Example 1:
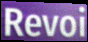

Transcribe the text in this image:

Revoi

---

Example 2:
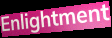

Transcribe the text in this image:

Enlightment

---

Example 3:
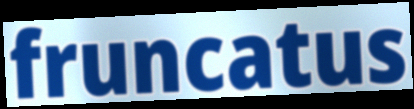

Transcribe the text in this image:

fruncatus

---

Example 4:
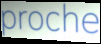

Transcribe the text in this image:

proche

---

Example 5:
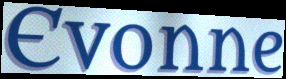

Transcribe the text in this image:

Evonne